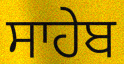
ਸਾਹੇਬ